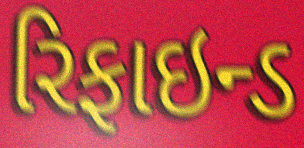
રિફાઇન્ડ